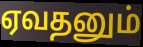
ஏவதனும்